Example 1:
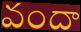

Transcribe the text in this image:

వందా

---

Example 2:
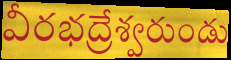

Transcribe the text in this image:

వీరభద్రేశ్వరుండు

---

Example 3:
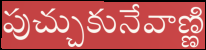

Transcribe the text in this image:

పుచ్చుకునేవాణ్ణి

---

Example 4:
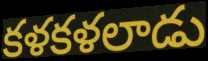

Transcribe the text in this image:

కళకళలాడు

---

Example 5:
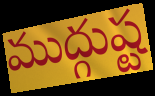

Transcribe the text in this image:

ముద్గుష్ట